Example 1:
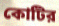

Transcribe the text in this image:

কোটির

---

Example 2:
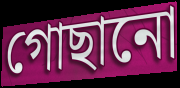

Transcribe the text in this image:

গোছানো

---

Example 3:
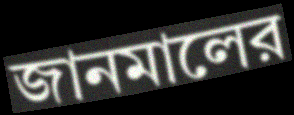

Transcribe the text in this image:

জানমালের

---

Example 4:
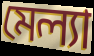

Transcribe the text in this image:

মেল্যা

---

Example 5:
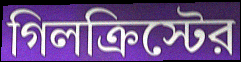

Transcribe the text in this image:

গিলক্রিস্টের